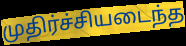
முதிர்ச்சியடைந்த